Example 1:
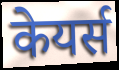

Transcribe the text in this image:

केयर्स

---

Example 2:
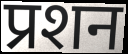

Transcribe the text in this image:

प्रशन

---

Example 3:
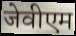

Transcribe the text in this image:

जेवीएम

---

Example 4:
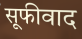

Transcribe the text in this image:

सूफीवाद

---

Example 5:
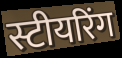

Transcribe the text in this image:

स्टीयरिंग